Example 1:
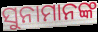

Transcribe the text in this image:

ସୁନାମାନଙ୍କ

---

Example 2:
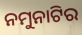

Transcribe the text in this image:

ନମୁନାଟିର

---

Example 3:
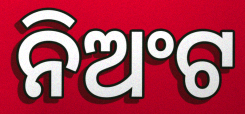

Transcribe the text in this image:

ନିଅଂଟ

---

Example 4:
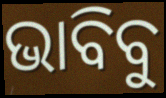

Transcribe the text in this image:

ଭାବିବୁ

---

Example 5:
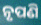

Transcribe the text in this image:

ନୃପଣି